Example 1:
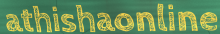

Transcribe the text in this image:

athishaonline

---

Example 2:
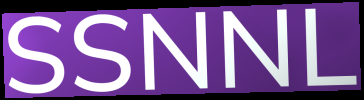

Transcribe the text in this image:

SSNNL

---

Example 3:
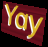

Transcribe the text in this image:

Yay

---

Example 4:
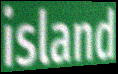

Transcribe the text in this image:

island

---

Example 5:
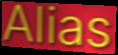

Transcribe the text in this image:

Alias